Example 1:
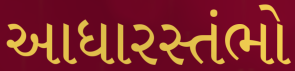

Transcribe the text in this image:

આધારસ્તંભો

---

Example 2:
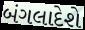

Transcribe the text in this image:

બંગલાદેશે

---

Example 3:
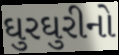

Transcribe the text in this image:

ઘુરઘુરીનો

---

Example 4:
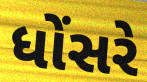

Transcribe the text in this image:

ધોંસરે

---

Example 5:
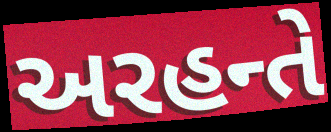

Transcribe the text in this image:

અરહન્તે